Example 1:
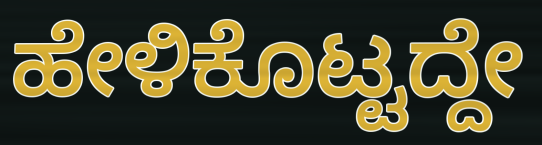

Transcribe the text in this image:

ಹೇಳಿಕೊಟ್ಟದ್ದೇ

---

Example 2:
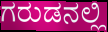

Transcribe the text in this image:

ಗರುಡನಲ್ಲಿ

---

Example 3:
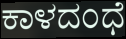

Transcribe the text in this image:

ಕಾಳದಂಧೆ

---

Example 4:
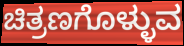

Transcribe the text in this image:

ಚಿತ್ರಣಗೊಳ್ಳುವ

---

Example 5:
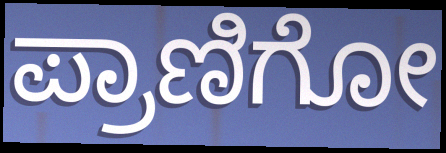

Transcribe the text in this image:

ಪ್ರಾಣಿಗೋ